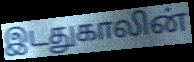
இடதுகாலின்